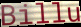
Billu